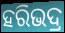
ହରିଭଦ୍ର